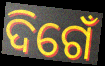
ଦିଗେଁ